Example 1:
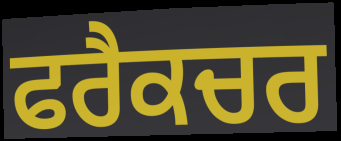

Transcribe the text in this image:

ਫਰੈਕਚਰ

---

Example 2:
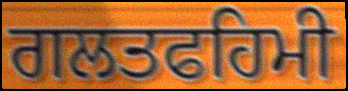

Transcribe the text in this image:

ਗਲਤਫਹਿਮੀ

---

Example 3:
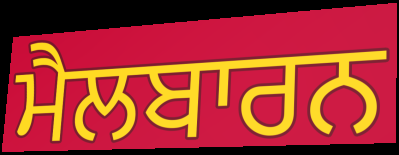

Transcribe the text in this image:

ਮੈਲਬਾਰਨ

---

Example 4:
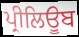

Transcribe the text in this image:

ਪ੍ਰੀਲਿਊਬ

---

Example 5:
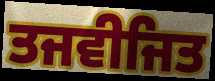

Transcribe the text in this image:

ਤਜਵੀਜਿਤ